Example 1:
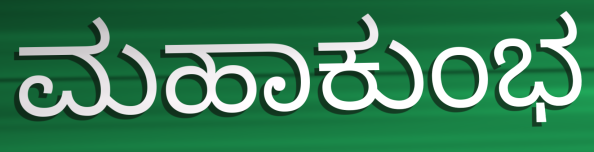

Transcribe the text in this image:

ಮಹಾಕುಂಭ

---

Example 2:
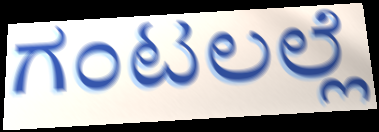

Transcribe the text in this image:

ಗಂಟಲಲ್ಲೆ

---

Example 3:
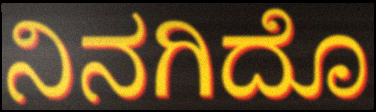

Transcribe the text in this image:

ನಿನಗಿದೊ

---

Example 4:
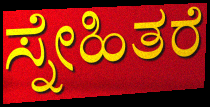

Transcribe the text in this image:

ಸ್ನೇಹಿತರೆ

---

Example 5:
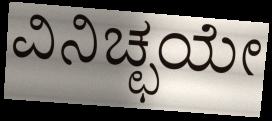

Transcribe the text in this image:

ವಿನಿಚ್ಛಯೇ